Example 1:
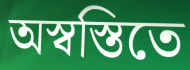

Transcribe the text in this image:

অস্বস্তিতে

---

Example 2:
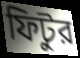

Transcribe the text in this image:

ফিটুর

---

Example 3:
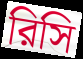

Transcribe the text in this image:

রিসি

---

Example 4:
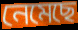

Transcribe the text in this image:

নেমেছে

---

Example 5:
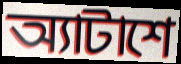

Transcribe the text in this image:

অ্যাটাশে